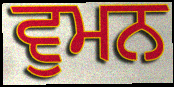
ਵੁਮਨ